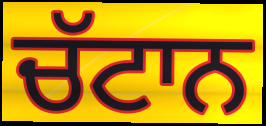
ਚੱਟਾਨ